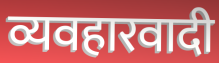
व्यवहारवादी